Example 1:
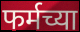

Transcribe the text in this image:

फर्मच्या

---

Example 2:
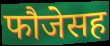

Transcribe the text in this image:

फौजेसह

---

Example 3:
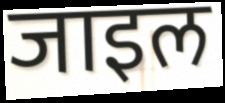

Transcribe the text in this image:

जाइल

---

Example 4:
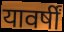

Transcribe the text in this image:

यावर्षीं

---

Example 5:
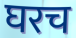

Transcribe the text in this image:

घरच